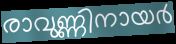
രാവുണ്ണിനായർ